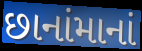
છાનાંમાનાં